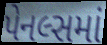
પેનલ્સમાં